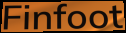
Finfoot